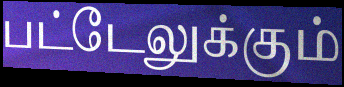
பட்டேலுக்கும்